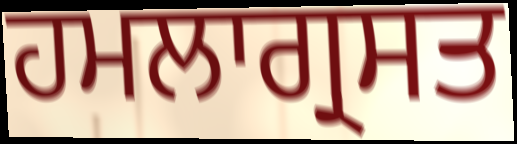
ਹਮਲਾਗ੍ਰਸਤ